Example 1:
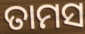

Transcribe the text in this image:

ତାମସ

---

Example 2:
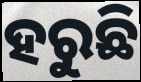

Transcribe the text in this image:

ହରୁଛି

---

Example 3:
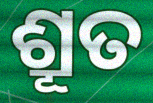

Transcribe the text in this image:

ଶ୍ରୂତ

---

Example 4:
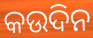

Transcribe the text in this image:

କଉଦିନ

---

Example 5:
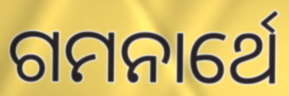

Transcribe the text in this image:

ଗମନାର୍ଥେ